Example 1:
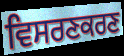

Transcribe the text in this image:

ਵਿਸਰਣਕਰਣ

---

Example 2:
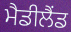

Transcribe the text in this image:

ਮੈਡੀਲੈਂਡ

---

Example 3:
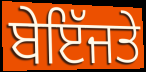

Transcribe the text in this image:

ਬੇਇੱਜਤੇ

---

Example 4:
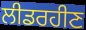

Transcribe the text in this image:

ਲੀਡਰਹੀਣ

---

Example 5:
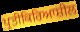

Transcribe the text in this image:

ਪ੍ਰਤੀਕਿਰਿਆਸ਼ੀਲ